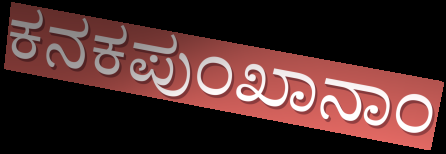
ಕನಕಪುಂಖಾನಾಂ